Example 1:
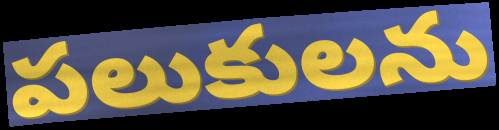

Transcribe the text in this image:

పలుకులను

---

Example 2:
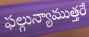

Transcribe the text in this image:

ఫల్గున్యాముత్తరే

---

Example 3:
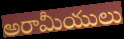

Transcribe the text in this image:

అరామీయులు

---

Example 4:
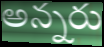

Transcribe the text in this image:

అన్నరు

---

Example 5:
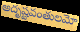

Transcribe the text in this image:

అదృష్టవంతులమో